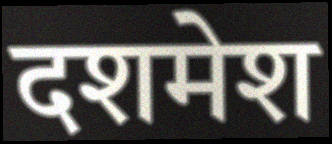
दशमेश